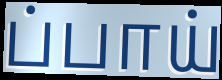
ப்பாய்